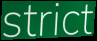
strict